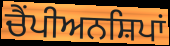
ਚੈਂਪੀਅਨਸ਼ਿਪਾਂ